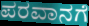
ಪರವಾನಗೆ